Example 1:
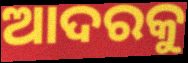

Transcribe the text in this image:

ଆଦରକୁ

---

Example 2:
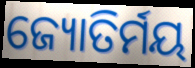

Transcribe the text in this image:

ଜ୍ୟୋତିର୍ମୟ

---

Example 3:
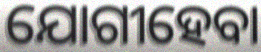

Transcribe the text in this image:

ଯୋଗୀହେବା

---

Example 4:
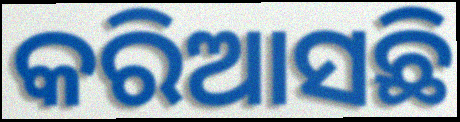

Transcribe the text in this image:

କରିଆସଛି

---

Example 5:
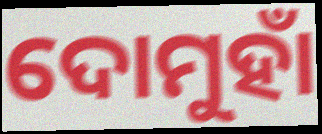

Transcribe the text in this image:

ଦୋମୁହାଁ